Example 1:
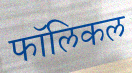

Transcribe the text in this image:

फॉलिकल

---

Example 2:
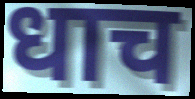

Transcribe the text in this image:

धाच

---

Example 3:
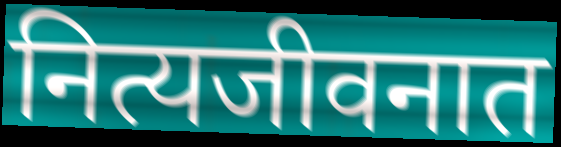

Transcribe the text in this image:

नित्यजीवनात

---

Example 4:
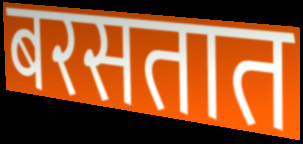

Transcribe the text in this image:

बरसतात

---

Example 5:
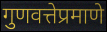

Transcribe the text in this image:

गुणवत्तेप्रमाणे